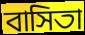
বাসিতা